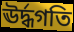
ঊর্দ্ধগতি